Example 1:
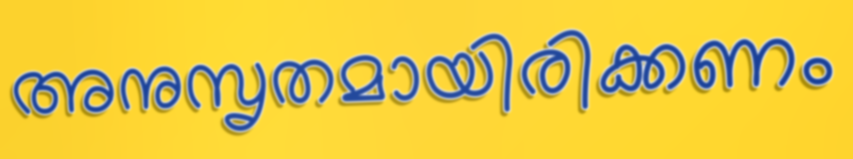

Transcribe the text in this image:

അനുസൃതമായിരിക്കണം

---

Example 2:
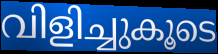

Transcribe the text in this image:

വിളിച്ചുകൂടെ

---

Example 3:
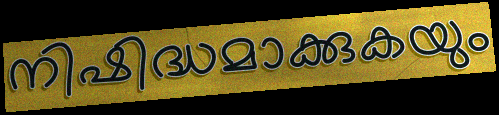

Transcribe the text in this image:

നിഷിദ്ധമാക്കുകയും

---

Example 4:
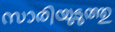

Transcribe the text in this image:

സാരിയുടുത്തു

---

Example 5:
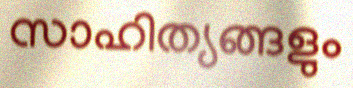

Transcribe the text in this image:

സാഹിത്യങ്ങളും